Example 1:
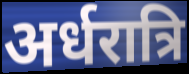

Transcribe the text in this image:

अर्धरात्रि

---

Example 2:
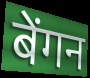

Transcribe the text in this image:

बेंगन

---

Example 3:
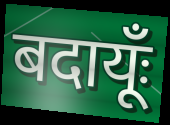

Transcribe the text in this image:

बदायूँः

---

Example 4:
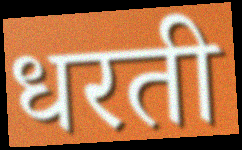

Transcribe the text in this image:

धरती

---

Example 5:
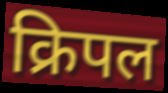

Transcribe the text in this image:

क्रिपल